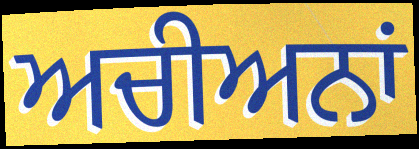
ਅਚੀਅਨਾਂ